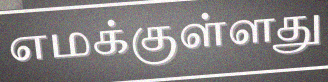
எமக்குள்ளது